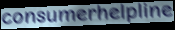
consumerhelpline